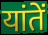
यांतें